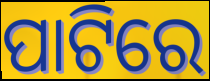
ପାଟିରେ